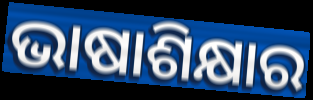
ଭାଷାଶିକ୍ଷାର